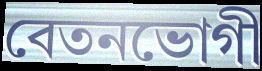
বেতনভোগী